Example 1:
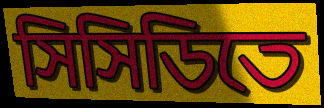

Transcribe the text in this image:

সিসিডিতে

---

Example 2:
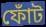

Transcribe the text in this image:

ফোঁট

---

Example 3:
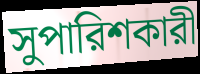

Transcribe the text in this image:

সুপারিশকারী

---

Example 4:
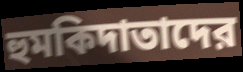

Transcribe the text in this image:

হুমকিদাতাদের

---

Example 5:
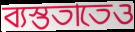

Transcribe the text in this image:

ব্যস্ততাতেও